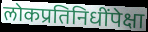
लोकप्रतिनिधींपेक्षा